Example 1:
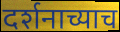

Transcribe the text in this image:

दर्शनाच्याच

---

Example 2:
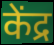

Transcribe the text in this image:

केंद्र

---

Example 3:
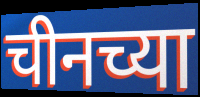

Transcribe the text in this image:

चीनच्या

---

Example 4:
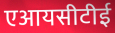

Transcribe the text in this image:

एआयसीटीई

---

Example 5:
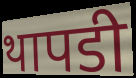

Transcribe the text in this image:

थापडी